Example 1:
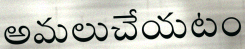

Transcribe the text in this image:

అమలుచేయటం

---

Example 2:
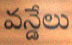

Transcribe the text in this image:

వన్డేలు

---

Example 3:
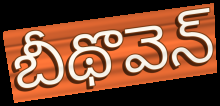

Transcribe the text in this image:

బీథొవెన్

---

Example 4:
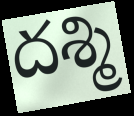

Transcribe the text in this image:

దశ్మి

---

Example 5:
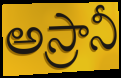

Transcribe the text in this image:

అస్రానీ